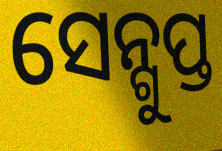
ସେନ୍ଗୁପ୍ତ